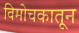
विमोचकातून